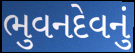
ભુવનદેવનું